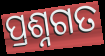
ପ୍ରଶ୍ନଗତ